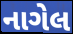
નાગેલ